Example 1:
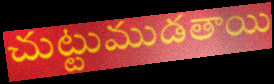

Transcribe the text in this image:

చుట్టుముడతాయి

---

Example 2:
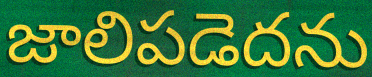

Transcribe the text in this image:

జాలిపడెదను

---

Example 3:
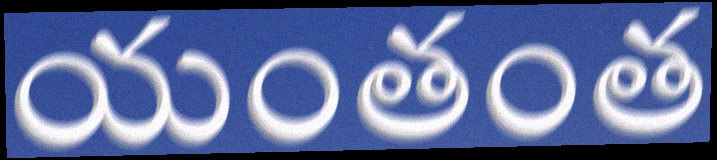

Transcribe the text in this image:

యంతంత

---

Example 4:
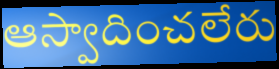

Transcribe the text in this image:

ఆస్వాదించలేరు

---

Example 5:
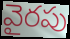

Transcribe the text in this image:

వైరపు